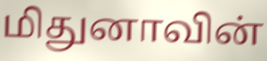
மிதுனாவின்